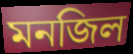
মনজিল